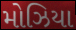
મોઝિયા